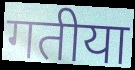
गतीया